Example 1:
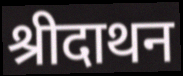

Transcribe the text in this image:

श्रीदाथन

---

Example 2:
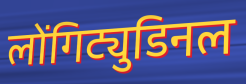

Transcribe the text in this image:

लोंगिट्युडिनल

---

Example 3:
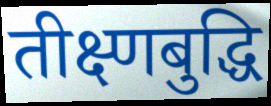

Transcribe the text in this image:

तीक्ष्णबुद्धि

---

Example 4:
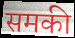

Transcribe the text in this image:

समकी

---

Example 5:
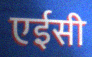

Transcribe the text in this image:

एईसी